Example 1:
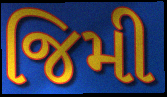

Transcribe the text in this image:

જિમી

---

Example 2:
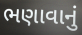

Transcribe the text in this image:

ભણાવાનું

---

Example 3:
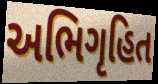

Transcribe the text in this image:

અભિગૃહિત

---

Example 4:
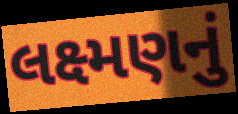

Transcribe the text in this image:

લક્ષ્મણનું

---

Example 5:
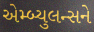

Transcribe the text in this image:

એમ્બ્યુલન્સને